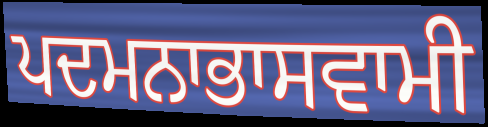
ਪਦਮਨਾਭਾਸਵਾਮੀ